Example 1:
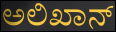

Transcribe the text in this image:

ಅಲಿಖಾನ್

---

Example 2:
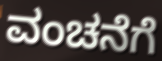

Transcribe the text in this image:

ವಂಚನೆಗೆ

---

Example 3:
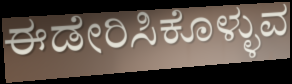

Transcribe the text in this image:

ಈಡೇರಿಸಿಕೊಳ್ಳುವ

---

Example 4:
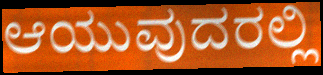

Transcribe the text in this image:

ಆಯುವುದರಲ್ಲಿ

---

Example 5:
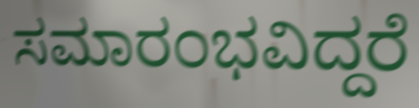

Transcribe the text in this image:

ಸಮಾರಂಭವಿದ್ದರೆ